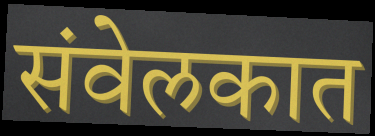
संवेलकात